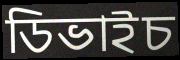
ডিভাইচ